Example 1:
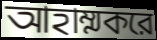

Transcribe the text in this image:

আহাম্মকরে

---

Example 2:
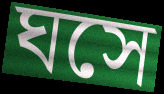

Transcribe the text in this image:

ঘসে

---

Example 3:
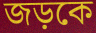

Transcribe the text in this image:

জড়কে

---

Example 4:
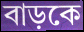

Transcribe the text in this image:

বাড়কে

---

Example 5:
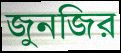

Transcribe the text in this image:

জুনজির